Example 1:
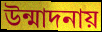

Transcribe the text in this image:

উন্মাদনায়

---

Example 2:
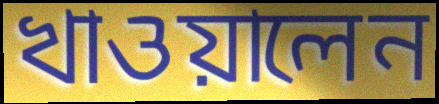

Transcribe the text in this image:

খাওয়ালেন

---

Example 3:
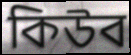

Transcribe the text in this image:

কিউব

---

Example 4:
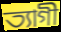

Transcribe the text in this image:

ত্যাগী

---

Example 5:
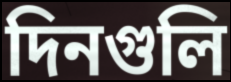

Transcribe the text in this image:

দিনগুলি